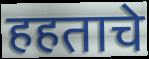
हहताचे